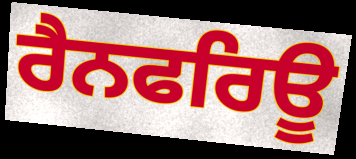
ਰੈਨਫਰਿਊ